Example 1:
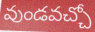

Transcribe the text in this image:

వుండవచ్చో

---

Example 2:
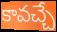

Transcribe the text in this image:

కావచ్చే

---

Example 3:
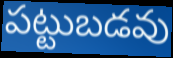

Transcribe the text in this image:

పట్టుబడవు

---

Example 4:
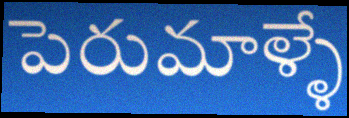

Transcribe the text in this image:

పెరుమాళ్ళే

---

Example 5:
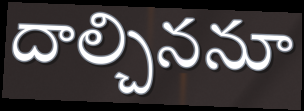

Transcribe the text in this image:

దాల్చిననూ